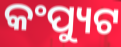
କଂପ୍ୟୁଟ